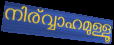
നിര്വ്വാഹമുള്ളൂ